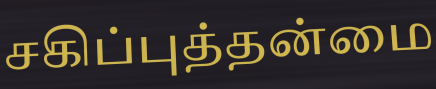
சகிப்புத்தன்மை